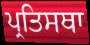
ਪ੍ਰਤਿਸਥਾ